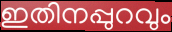
ഇതിനപ്പുറവും